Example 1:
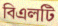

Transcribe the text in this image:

বিএলটি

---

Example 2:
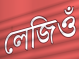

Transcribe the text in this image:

লেজিওঁ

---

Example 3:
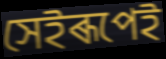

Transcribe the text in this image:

সেইৰূপেই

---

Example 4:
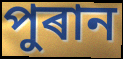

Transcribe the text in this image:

পুৰান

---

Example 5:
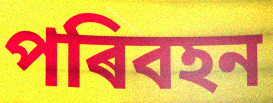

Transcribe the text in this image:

পৰিবহন